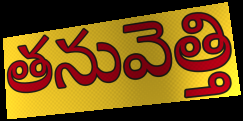
తనువెత్తి